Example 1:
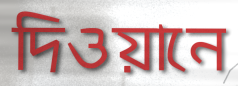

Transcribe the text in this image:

দিওয়ানে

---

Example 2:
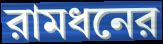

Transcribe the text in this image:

রামধনের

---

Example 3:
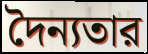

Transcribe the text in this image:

দৈন্যতার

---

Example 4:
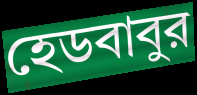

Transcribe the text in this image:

হেডবাবুর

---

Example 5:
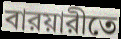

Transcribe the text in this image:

বারয়ারীতে